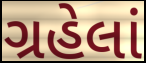
ગ્રહેલાં